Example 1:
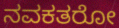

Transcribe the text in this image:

ನವಕತರೋ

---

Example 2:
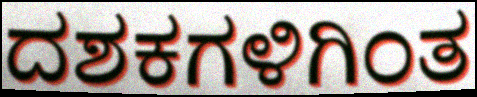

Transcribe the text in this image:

ದಶಕಗಳಿಗಿಂತ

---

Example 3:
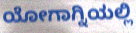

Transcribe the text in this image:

ಯೋಗಾಗ್ನಿಯಲ್ಲಿ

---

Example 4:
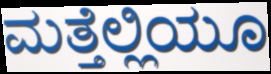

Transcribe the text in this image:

ಮತ್ತೆಲ್ಲಿಯೂ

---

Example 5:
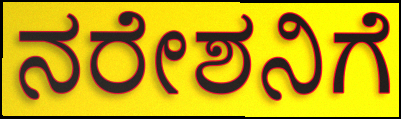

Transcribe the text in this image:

ನರೇಶನಿಗೆ